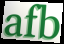
afb